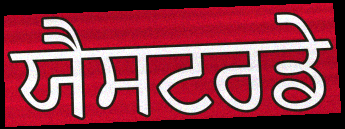
ਯੈਸਟਰਡੇ